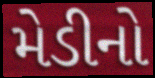
મેડીનો